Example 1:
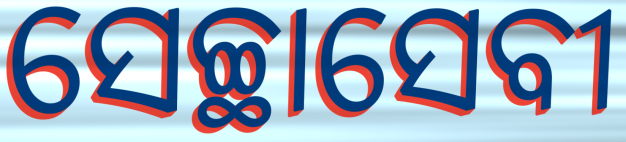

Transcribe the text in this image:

ସେଚ୍ଛାସେବୀ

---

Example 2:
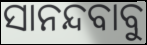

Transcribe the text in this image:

ସାନନ୍ଦବାବୁ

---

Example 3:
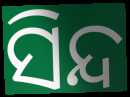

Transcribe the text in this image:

ସିନ୍ଦ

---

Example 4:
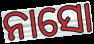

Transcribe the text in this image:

ନାସୋ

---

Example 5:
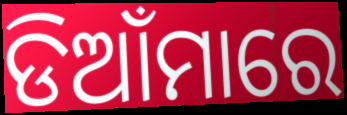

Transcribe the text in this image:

ଡିଆଁମାରେ